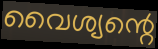
വൈശ്യന്റെ